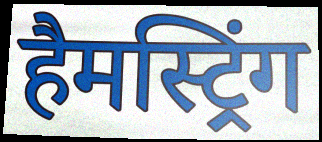
हैमस्ट्रिंग